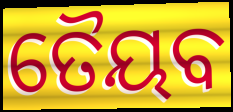
ତୈୟବ